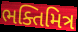
ભક્તિમિત્ર